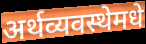
अर्थव्यवस्थेमधे